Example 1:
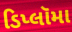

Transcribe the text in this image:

ડિપ્લૉમા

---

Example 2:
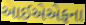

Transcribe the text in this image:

આઈએએફના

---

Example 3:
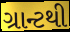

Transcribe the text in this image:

ગ્રાન્ટથી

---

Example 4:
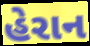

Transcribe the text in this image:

હેરાન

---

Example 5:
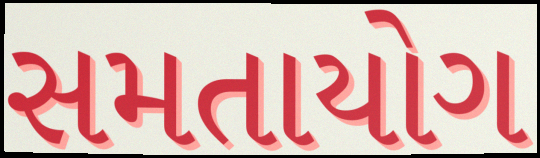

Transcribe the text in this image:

સમતાયોગ